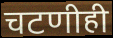
चटणीही